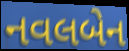
નવલબેન